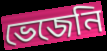
ভেজেনি